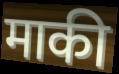
माकी